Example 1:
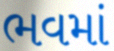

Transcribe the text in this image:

ભવમાં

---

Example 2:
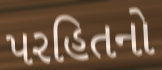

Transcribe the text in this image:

પરહિતનો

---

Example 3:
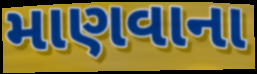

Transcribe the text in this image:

માણવાના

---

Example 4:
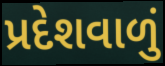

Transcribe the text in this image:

પ્રદેશવાળું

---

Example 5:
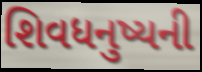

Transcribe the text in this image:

શિવધનુષ્યની